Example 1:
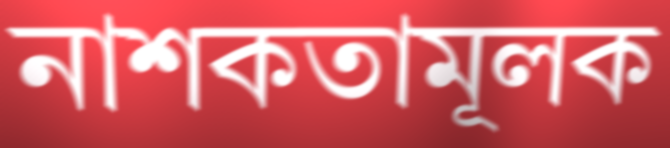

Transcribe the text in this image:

নাশকতামূলক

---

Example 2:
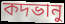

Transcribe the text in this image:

কদভানু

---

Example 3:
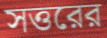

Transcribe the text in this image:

সত্তরের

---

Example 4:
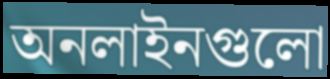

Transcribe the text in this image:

অনলাইনগুলো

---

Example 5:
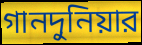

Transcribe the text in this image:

গানদুনিয়ার